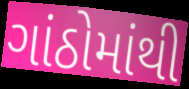
ગાંઠોમાંથી